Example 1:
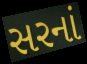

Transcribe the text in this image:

સરનાં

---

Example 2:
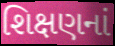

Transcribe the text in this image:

શિક્ષણનાં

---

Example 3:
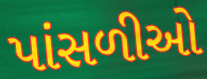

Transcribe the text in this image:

પાંસળીઓ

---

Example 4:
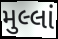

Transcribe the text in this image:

મુલ્લાં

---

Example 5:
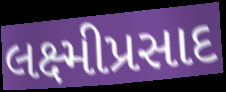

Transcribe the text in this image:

લક્ષ્મીપ્રસાદ